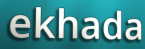
ekhada